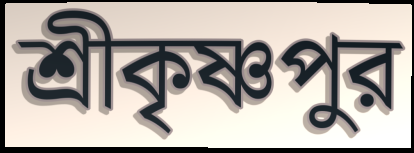
শ্রীকৃষ্ণপুর